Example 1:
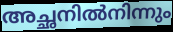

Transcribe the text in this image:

അച്ഛനിൽനിന്നും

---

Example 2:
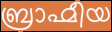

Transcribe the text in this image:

ബ്രാഹ്മീയ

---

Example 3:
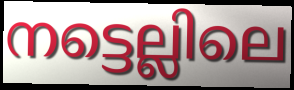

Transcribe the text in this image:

നട്ടെല്ലിലെ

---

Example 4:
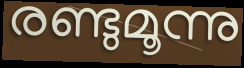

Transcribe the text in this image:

രണ്ടുമൂന്നു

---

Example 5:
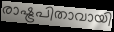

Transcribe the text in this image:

രാഷ്ട്രപിതാവായി